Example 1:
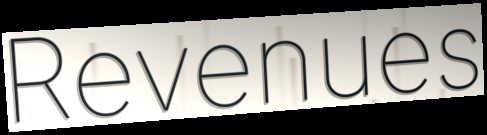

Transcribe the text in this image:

Revenues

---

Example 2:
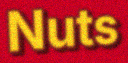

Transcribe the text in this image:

Nuts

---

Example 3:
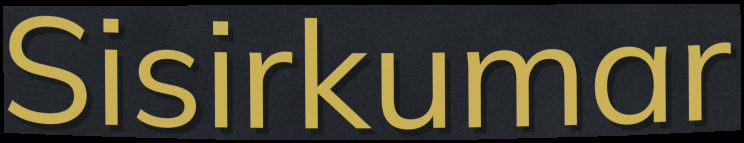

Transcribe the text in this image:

Sisirkumar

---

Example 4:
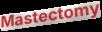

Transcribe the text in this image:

Mastectomy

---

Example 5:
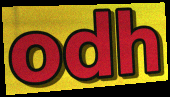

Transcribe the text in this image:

odh